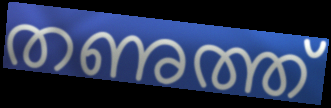
തണുത്ത്